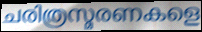
ചരിത്രസ്മരണകളെ